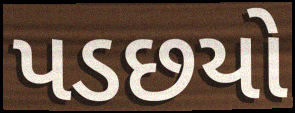
પડછયો